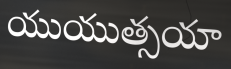
యుయుత్సయా